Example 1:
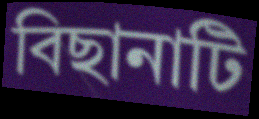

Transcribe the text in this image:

বিছানাটি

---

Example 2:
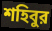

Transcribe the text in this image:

শহিবুর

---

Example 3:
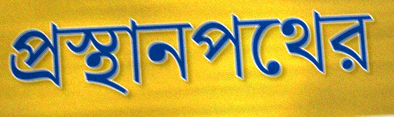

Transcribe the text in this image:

প্রস্থানপথের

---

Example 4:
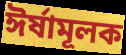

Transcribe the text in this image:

ঈর্ষামূলক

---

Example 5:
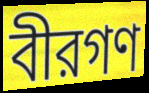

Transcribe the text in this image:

বীরগণ